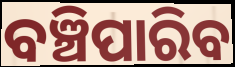
ବଞ୍ଚିପାରିବ